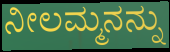
ನೀಲಮ್ಮನನ್ನು